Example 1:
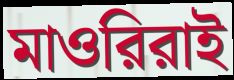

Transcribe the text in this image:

মাওরিরাই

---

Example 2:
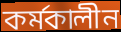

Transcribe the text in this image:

কর্মকালীন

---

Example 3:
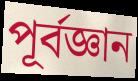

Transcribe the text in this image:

পূর্বজ্ঞান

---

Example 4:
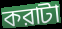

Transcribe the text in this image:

করাটা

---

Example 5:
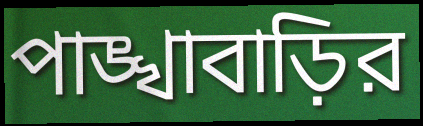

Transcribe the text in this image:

পাঙ্খাবাড়ির